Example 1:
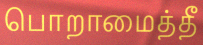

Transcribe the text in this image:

பொறாமைத்தீ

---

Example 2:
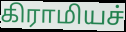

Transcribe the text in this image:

கிராமியச்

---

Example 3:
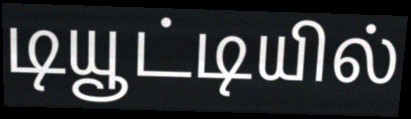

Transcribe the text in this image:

டியூட்டியில்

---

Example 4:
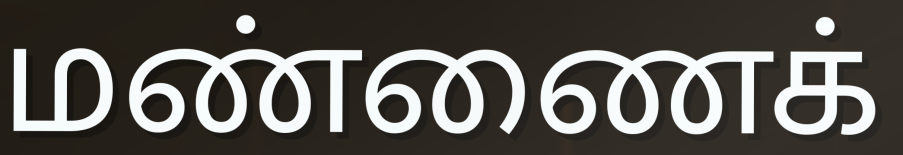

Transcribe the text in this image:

மண்ணைக்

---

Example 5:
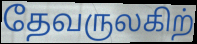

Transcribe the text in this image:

தேவருலகிற்